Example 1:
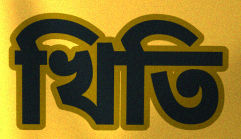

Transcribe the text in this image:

খিতি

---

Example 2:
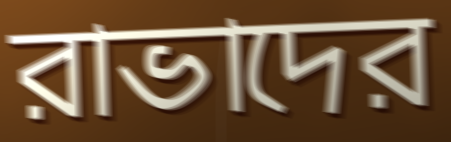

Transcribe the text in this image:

রাভাদের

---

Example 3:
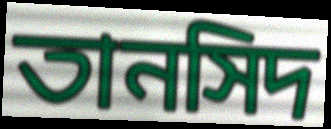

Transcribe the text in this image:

তানসিদ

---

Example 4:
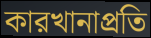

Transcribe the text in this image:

কারখানাপ্রতি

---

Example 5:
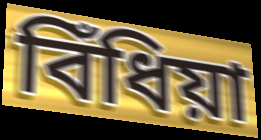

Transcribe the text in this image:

বিঁধিয়া